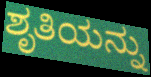
ಶೃತಿಯನ್ನು